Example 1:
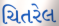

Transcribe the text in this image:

ચિતરેલ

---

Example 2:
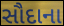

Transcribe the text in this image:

સૌદાના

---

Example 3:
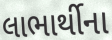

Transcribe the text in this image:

લાભાર્થીના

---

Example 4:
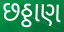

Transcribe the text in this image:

છઠ્ઠાણ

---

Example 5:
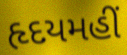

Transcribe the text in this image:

હૃદયમહીં